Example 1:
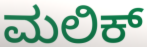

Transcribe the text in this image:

ಮಲಿಕ್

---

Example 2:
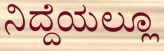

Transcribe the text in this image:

ನಿದ್ದೆಯಲ್ಲೂ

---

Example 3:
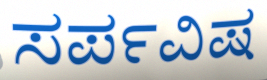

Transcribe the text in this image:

ಸರ್ಪವಿಷ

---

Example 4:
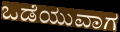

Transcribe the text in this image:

ಒಡೆಯುವಾಗ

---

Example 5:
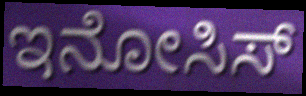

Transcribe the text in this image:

ಇನೋಸಿಸ್